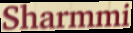
Sharmmi